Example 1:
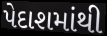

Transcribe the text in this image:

પેદાશમાંથી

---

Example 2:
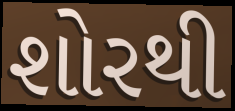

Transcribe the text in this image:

શોરથી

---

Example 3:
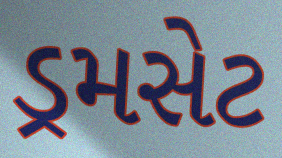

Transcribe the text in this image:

ડ્રમસેટ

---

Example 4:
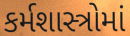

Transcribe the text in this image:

કર્મશાસ્ત્રોમાં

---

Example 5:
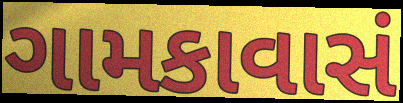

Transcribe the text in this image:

ગામકાવાસં